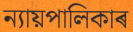
ন্যায়পালিকাৰ